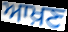
ਆਖ਼ਣ